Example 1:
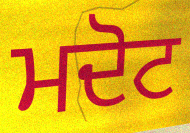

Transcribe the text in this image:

ਮਦੋਟ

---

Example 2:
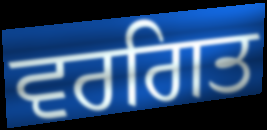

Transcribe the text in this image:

ਵਰਗਿਤ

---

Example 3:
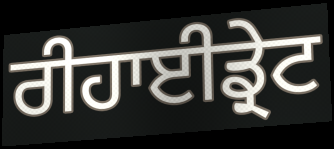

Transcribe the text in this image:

ਰੀਹਾਈਡ੍ਰੇਟ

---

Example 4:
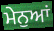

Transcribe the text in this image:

ਮੇਨੁਆਂ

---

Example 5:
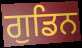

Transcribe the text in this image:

ਗੁਡਿਨ